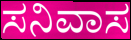
ಸನಿವಾಸ